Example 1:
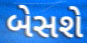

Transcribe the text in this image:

બેસશે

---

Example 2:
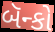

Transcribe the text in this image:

બૅન્કો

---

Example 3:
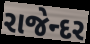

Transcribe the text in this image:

રાજેન્દર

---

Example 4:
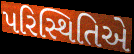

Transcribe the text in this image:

પરિસ્થિતિએ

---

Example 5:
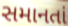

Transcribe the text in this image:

સમાનતાં